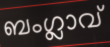
ബംഗ്ലാവ്